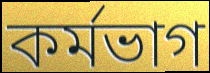
কৰ্মভাগ